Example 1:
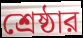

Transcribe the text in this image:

শ্রেষ্ঠার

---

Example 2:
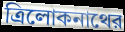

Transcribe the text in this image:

ত্রিলোকনাথের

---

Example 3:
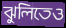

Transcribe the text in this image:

ঝুলিতেও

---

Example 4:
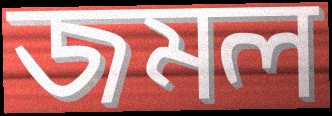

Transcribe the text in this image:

জমল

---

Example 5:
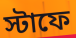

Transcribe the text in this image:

স্টাফে